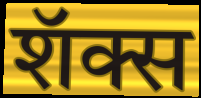
शॅक्स